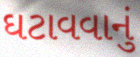
ઘટાવવાનું